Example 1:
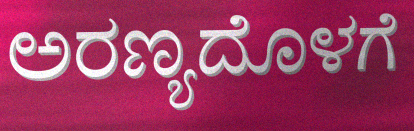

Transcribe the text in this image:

ಅರಣ್ಯದೊಳಗೆ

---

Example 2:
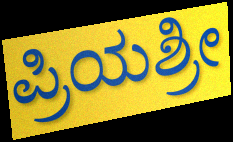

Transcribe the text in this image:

ಪ್ರಿಯಶ್ರೀ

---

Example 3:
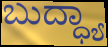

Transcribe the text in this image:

ಬುದ್ಧ್ಯಾ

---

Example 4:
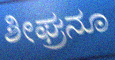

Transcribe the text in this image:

ಶೀಘ್ರನೂ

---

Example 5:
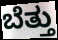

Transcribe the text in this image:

ಬೆತ್ತು